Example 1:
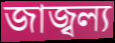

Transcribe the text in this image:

জাজ্বল্য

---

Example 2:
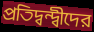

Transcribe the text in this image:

প্রতিদ্বন্দ্বীদের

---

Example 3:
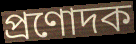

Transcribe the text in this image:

প্রণোদক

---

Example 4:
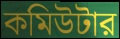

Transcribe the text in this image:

কমিউটার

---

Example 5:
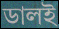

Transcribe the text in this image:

ডালই